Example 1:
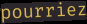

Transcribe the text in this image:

pourriez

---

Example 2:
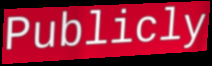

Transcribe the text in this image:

Publicly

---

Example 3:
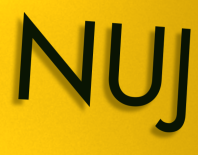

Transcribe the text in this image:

NUJ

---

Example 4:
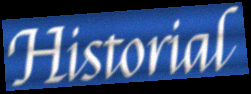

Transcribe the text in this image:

Historial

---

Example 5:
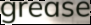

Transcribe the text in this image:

grease